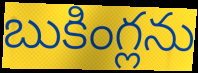
బుకింగ్లను